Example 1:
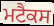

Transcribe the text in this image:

ਮਟੈਕਸ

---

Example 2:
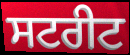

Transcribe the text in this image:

ਸਟਰੀਟ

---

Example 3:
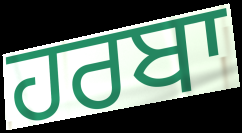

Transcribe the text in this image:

ਹਰਬਾ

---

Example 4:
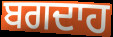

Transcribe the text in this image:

ਬਗਦਾਹ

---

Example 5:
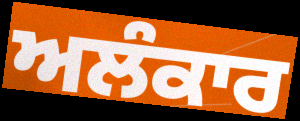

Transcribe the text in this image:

ਅਲੰਕਾਰ